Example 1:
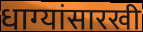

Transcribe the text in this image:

धाग्यांसारखी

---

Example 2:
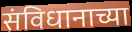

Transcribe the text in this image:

संविधानाच्या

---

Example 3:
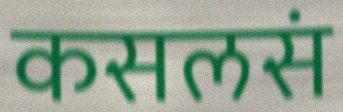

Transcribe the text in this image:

कसलसं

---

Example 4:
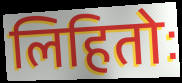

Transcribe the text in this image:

लिहितोः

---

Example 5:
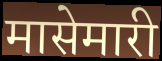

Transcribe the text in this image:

मासेमारी